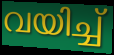
വയിച്ച്